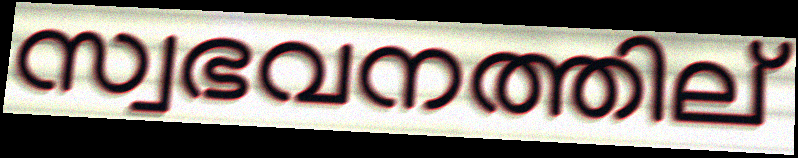
സ്വഭവനത്തില്